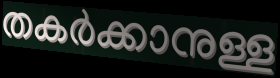
തകർക്കാനുള്ള